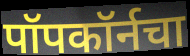
पॉपकॉर्नचा